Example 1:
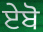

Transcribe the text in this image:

ਏਬੋ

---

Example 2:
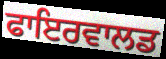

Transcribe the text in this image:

ਫਾਇਰਵਾਲਡ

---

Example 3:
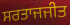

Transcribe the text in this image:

ਸਰਤਾਜਜੀਤ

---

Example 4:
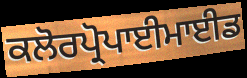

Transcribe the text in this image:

ਕਲੋਰਪ੍ਰੋਪਾਈਮਾਈਡ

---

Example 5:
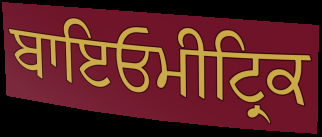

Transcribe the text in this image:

ਬਾਇਓਮੀਟ੍ਰਿਕ